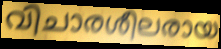
വിചാരശീലരായ